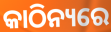
କାଠିନ୍ୟରେ